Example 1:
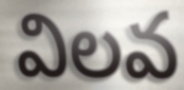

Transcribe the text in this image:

విలవ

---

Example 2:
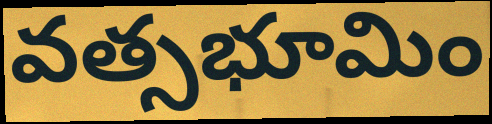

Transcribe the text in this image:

వత్సభూమిం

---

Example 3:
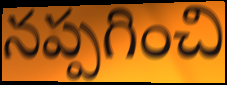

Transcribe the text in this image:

నప్పగించి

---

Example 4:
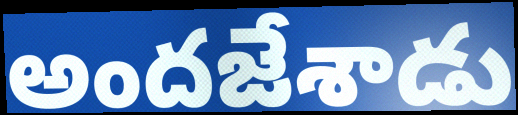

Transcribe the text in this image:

అందజేశాడు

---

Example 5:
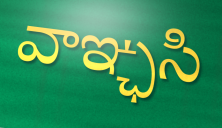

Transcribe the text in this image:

వాఞ్ఛసి